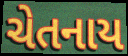
ચેતનાય